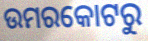
ଉମରକୋଟରୁ